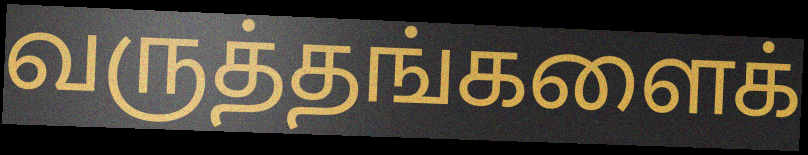
வருத்தங்களைக்